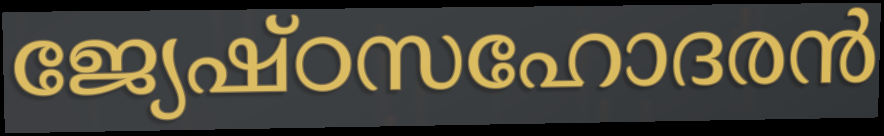
ജ്യേഷ്ഠസഹോദരൻ